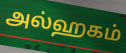
அல்ஹகம்